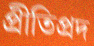
প্রীতিপ্রদ